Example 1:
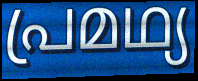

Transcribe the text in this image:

പ്രമഥ്യ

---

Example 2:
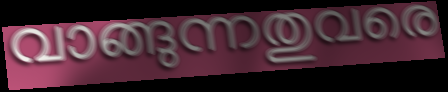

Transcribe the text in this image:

വാങ്ങുന്നതുവരെ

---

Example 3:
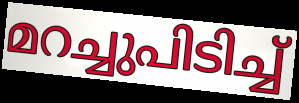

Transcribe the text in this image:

മറച്ചുപിടിച്ച്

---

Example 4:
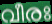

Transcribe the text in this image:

വീരഃ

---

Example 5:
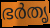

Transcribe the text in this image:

ഭർതൃ